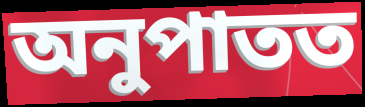
অনুপাতত